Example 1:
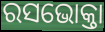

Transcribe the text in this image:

ରସଭୋକ୍ତା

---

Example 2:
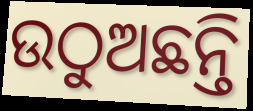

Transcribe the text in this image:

ଉଠୁଅଛନ୍ତି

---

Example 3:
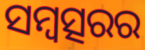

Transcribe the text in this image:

ସମ୍ବତ୍ସରର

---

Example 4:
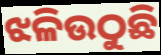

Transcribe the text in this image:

ଝଳିଉଠୁଛି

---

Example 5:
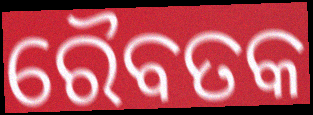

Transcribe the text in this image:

ରୈବତକ